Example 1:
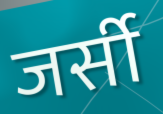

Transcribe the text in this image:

जर्सी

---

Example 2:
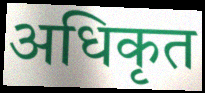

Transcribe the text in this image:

अधिकृत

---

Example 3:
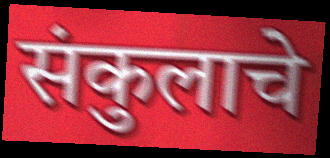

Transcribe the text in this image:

संकुलाचे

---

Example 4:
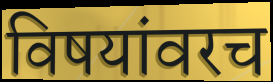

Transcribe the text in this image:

विषयांवरच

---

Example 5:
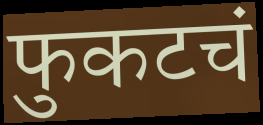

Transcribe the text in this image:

फुकटचं